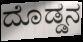
ದೊಡ್ಡನ